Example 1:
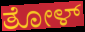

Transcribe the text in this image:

ತೋಳ್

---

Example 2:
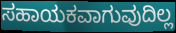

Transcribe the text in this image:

ಸಹಾಯಕವಾಗುವುದಿಲ್ಲ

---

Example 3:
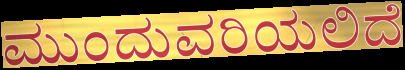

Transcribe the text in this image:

ಮುಂದುವರಿಯಲಿದೆ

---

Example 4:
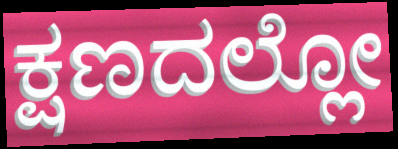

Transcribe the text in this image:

ಕ್ಷಣದಲ್ಲೋ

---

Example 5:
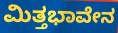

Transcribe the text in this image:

ಮಿತ್ತಭಾವೇನ